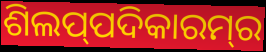
ଶିଲପ୍‍ପଦିକାରମ୍‍ର